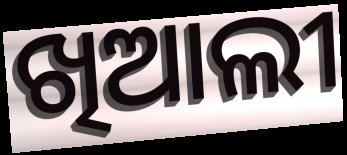
ଖିଆଲୀ